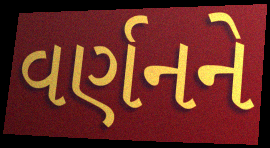
વર્ણનને